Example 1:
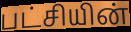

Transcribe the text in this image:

பட்சியின்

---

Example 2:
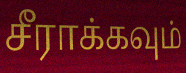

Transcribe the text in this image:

சீராக்கவும்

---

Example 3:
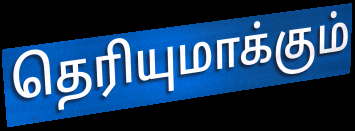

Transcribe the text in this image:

தெரியுமாக்கும்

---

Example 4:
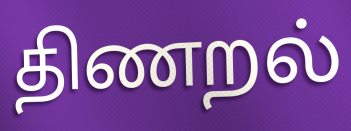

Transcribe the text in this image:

திணறல்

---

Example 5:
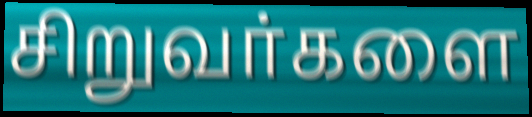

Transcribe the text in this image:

சிறுவர்களை